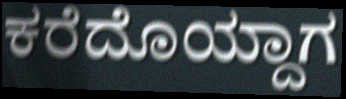
ಕರೆದೊಯ್ದಾಗ